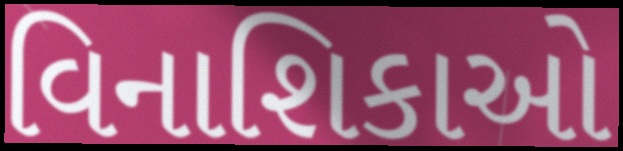
વિનાશિકાઓ